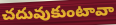
చదువుకుంటావా